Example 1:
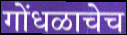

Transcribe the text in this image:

गोंधळाचेच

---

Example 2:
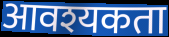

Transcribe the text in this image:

आवश्यकता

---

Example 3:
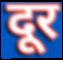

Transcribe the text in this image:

दूर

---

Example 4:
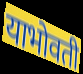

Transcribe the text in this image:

याभोवती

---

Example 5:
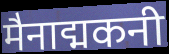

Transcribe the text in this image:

मैनाद्मकनी